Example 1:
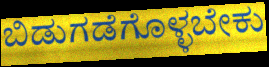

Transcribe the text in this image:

ಬಿಡುಗಡೆಗೊಳ್ಳಬೇಕು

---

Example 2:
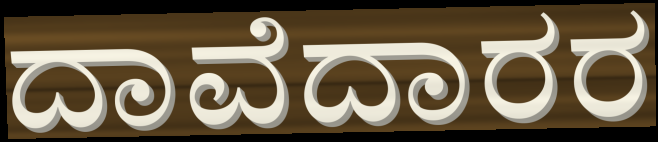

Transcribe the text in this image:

ದಾವೆದಾರರ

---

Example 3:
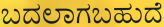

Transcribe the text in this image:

ಬದಲಾಗಬಹುದೆ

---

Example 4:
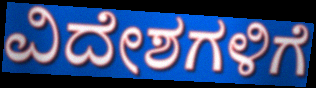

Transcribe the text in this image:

ವಿದೇಶಗಳಿಗೆ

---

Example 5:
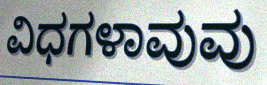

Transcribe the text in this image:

ವಿಧಗಳಾವುವು